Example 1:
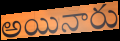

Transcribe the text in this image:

అయినారు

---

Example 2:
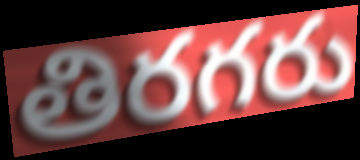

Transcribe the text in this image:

తిరగరు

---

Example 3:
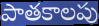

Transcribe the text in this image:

పాతకాలపు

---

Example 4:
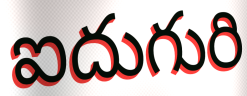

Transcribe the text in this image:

ఐదుగురి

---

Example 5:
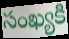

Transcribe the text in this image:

సంఖ్యకి